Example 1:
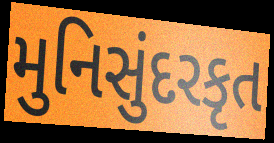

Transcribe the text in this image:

મુનિસુંદરકૃત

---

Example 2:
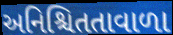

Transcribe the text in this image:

અનિશ્ચિતતાવાળા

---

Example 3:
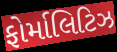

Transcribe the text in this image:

ફોર્માલિટિઝ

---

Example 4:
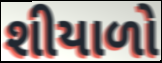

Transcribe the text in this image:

શીયાળો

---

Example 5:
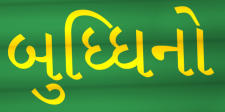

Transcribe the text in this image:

બુધ્ધિનો